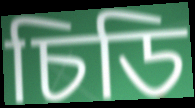
চিডি